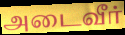
அடைவீர்